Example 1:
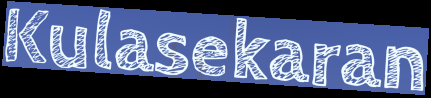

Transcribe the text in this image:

Kulasekaran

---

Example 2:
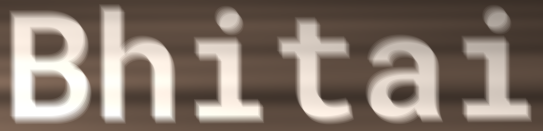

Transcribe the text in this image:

Bhitai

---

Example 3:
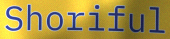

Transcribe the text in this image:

Shoriful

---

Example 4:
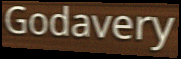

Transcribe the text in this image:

Godavery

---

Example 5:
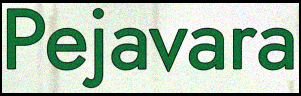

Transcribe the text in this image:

Pejavara